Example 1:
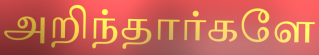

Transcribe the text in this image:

அறிந்தார்களே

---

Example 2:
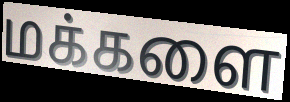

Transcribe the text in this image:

மக்களை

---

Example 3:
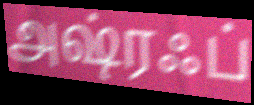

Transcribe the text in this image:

அஷ்ரஃப்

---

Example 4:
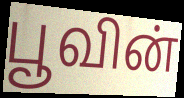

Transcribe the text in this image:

பூவின்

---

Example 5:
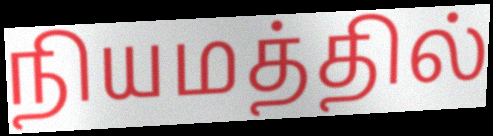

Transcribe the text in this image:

நியமத்தில்